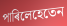
পাৰিলেহেতেন